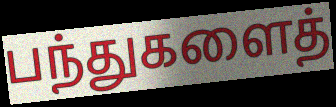
பந்துகளைத்